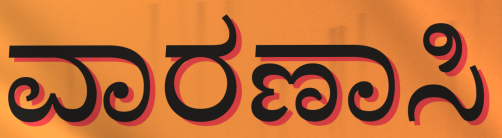
ವಾರಣಾಸಿ